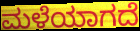
ಮಳೆಯಾಗದೆ